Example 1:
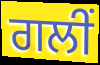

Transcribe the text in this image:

ਗਲੀਂ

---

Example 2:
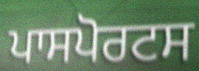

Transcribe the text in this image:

ਪਾਸਪੋਰਟਸ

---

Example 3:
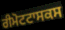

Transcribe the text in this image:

ਰੀਮੋਟਟਾਸਕਸ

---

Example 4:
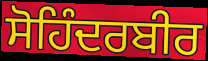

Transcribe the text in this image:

ਸੋਹਿੰਦਰਬੀਰ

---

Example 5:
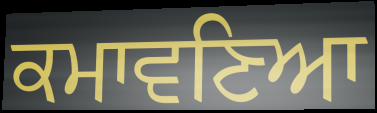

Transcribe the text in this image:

ਕਮਾਵਣਿਆ